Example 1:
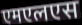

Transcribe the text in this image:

एमएलएस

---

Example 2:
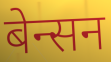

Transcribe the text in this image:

बेन्सन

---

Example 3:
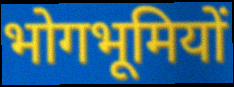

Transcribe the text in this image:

भोगभूमियों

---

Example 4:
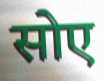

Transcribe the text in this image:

सोए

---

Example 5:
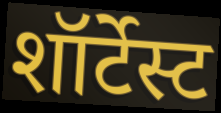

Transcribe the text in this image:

शॉर्टेस्ट